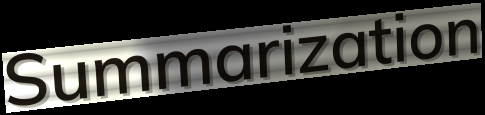
Summarization